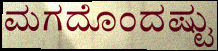
ಮಗದೊಂದಷ್ಟು